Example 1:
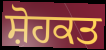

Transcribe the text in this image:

ਸ਼ੋਹਕਤ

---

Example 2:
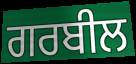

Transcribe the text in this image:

ਗਰਬੀਲ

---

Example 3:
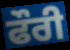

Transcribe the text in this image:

ਫੌਰੀ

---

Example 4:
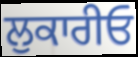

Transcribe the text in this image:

ਲੁਕਾਰੀਓ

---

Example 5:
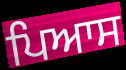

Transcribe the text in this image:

ਪਿਆਸ